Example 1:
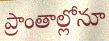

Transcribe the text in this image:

ప్రాంతాల్లోనూ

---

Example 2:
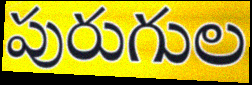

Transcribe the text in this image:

పురుగుల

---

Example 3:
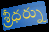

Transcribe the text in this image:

శ్రీధర్ను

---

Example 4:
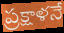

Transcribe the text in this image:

ప్రక్షాళనే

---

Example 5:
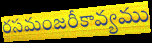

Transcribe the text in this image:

రసమంజరీకావ్యము